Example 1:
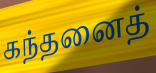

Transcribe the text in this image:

கந்தனைத்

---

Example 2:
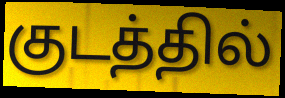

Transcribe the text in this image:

குடத்தில்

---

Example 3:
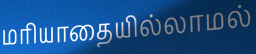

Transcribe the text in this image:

மரியாதையில்லாமல்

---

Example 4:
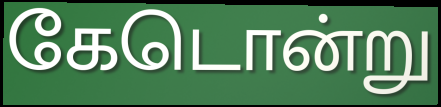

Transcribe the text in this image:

கேடொன்று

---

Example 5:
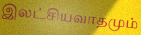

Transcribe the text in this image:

இலட்சியவாதமும்